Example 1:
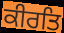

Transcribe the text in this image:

ਕੀਰਤਿ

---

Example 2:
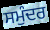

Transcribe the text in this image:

ਸਮੁੰਦਰ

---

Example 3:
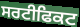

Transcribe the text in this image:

ਸਰਟੀਫਿਕਟ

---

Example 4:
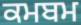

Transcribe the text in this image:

ਕਮਬਮ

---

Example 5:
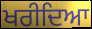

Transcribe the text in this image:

ਖਰੀਦਿਆ